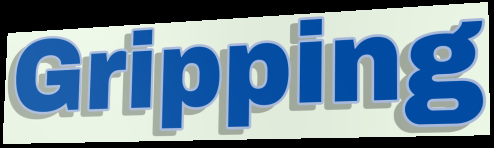
Gripping